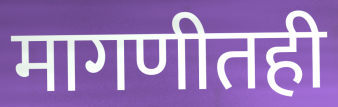
मागणीतही